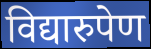
विद्यारुपेण